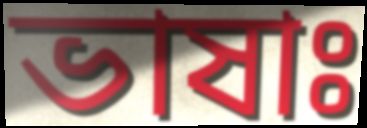
ভাষাঃ